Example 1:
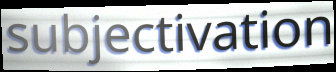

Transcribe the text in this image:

subjectivation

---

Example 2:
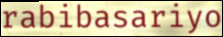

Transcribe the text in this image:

rabibasariyo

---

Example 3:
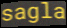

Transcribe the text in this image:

sagla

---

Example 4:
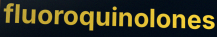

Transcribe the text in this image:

fluoroquinolones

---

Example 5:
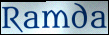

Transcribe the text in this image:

Ramda